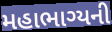
મહાભાગ્યની